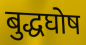
बुद्धघोष